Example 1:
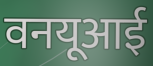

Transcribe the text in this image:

वनयूआई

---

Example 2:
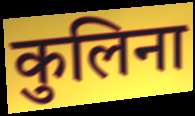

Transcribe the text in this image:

कुलिना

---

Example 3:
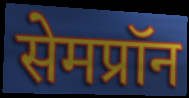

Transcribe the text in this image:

सेमप्रॉन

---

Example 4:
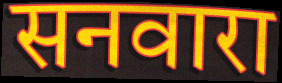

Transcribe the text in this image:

सनवारा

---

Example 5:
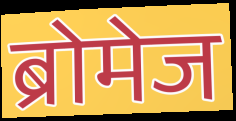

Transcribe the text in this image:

ब्रोमेज